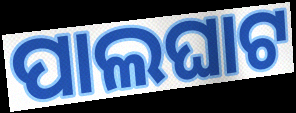
ପାଲଘାଟ